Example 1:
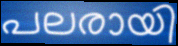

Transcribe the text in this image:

പലരായി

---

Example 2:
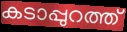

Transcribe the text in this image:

കടാപ്പുറത്ത്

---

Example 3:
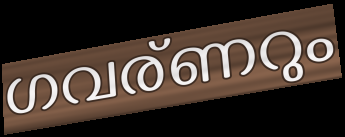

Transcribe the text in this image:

ഗവര്ണറും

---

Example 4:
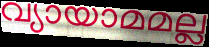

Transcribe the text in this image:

വ്യായാമമല്ല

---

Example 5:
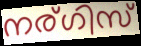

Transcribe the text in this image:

നര്ഗിസ്